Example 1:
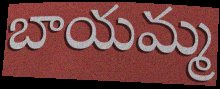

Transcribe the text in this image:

బాయమ్మ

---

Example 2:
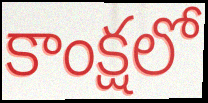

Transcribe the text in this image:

కాంక్షలో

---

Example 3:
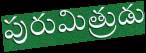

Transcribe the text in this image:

పురుమిత్రుడు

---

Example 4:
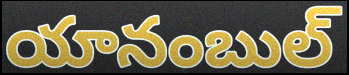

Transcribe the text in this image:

యానంబుల్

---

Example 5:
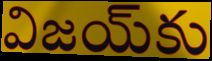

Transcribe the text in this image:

విజయ్‌కు